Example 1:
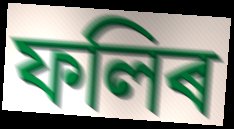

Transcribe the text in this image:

ফলিৰ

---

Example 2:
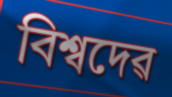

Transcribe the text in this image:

বিশ্বদেৱ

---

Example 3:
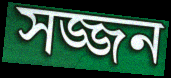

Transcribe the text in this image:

সজ্জন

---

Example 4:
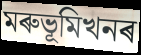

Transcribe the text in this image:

মৰুভূমিখনৰ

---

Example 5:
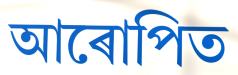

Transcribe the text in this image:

আৰোপিত